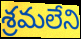
శ్రమలేని